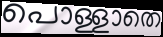
പൊള്ളാതെ